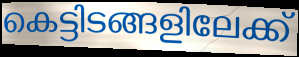
കെട്ടിടങ്ങളിലേക്ക്